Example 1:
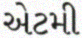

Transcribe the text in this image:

એટમી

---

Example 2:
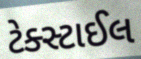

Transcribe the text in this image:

ટેક્સ્ટાઈલ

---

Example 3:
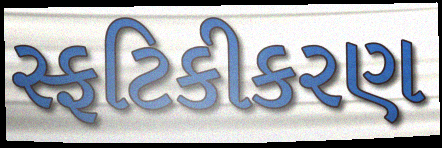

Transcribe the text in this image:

સ્ફટિકીકરણ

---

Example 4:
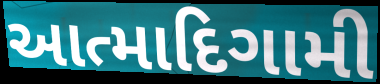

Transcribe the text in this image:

આત્માદિગામી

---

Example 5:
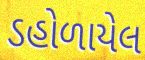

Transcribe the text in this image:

ડહોળાયેલ